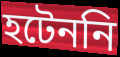
হটেননি